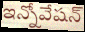
ఇన్నోవేషన్